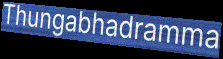
Thungabhadramma